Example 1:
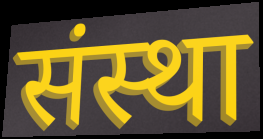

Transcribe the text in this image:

संस्था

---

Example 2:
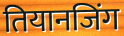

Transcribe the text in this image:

तियानजिंग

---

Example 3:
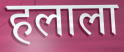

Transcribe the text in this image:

हलाला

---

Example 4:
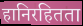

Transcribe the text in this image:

हानिरहितता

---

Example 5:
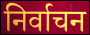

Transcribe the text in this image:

निर्वाचन